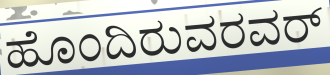
ಹೊಂದಿರುವರವರ್